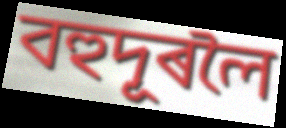
বহুদূৰলৈ